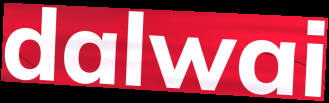
dalwai